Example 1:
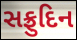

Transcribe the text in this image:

સફ્રુદિન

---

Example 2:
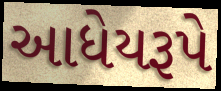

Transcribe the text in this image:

આધેયરૂપે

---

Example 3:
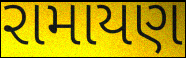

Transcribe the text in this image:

રામાયણ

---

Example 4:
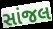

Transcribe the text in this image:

સાંજલ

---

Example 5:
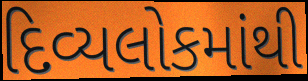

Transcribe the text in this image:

દિવ્યલોકમાંથી